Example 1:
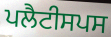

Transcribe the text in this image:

ਪਲੈਟੀਸਪਸ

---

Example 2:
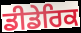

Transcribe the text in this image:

ਡੀਡੇਰਿਕ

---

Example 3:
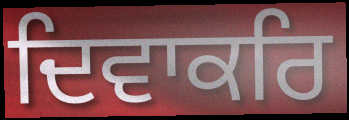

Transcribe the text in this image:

ਦਿਵਾਕਰਿ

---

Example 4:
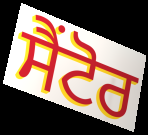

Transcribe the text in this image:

ਸੈਂਟੋਰ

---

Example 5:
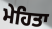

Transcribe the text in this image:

ਮੇਹਿਤਾ